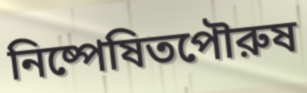
নিষ্পেষিতপৌরুষ